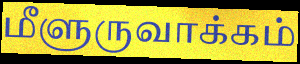
மீளுருவாக்கம்